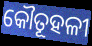
କୌତୂହଳୀ